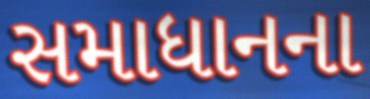
સમાધાનના